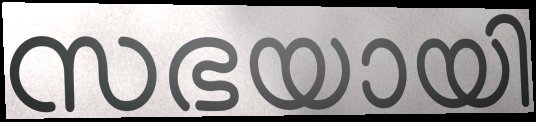
സഭയായി